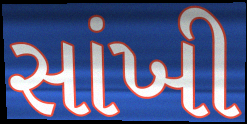
સાંખી